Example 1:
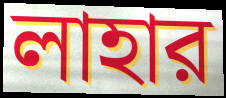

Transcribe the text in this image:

লাহার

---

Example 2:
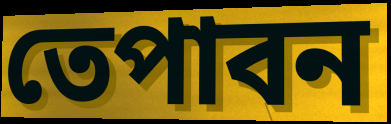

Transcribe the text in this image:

তেপাবন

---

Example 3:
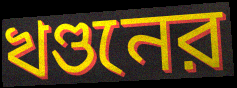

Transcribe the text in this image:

খণ্ডনের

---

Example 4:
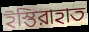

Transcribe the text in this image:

ইস্তিরাহাত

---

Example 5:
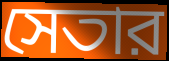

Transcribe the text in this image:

সেতার